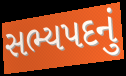
સભ્યપદનું